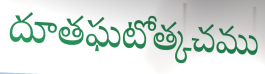
దూతఘటోత్కచము